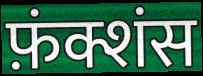
फ़ंक्शंस